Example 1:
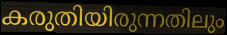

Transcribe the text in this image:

കരുതിയിരുന്നതിലും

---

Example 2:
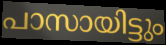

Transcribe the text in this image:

പാസായിട്ടും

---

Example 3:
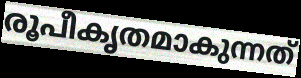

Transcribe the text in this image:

രൂപീകൃതമാകുന്നത്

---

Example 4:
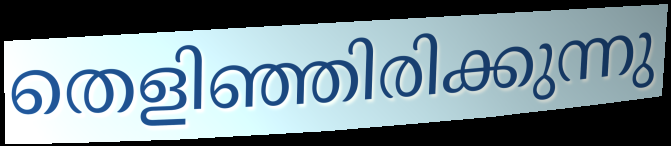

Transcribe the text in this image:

തെളിഞ്ഞിരിക്കുന്നു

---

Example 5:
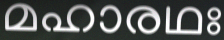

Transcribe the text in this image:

മഹാരഥഃ